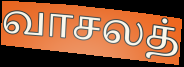
வாசலத்